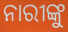
ନାରୀଙ୍କୁ